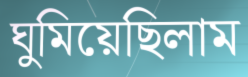
ঘুমিয়েছিলাম